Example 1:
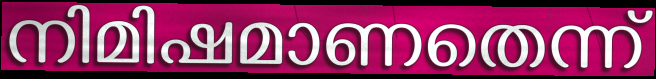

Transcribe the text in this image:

നിമിഷമാണതെന്ന്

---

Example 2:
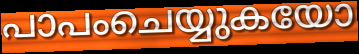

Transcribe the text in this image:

പാപംചെയ്യുകയോ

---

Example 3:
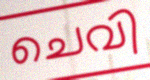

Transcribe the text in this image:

ചെവി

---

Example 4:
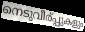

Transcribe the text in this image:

നെടുവീര്പ്പുകളും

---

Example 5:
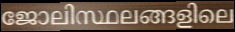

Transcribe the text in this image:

ജോലിസ്ഥലങ്ങളിലെ